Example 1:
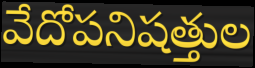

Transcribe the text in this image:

వేదోపనిషత్తుల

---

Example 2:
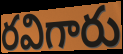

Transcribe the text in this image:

రవిగారు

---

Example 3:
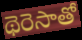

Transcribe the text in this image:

థెరెసాతో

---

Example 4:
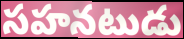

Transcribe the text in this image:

సహనటుడు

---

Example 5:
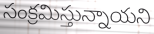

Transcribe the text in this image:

సంక్రమిస్తున్నాయని